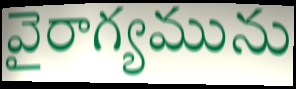
వైరాగ్యమును